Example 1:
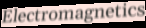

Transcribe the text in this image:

Electromagnetics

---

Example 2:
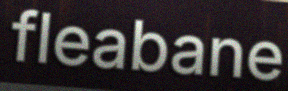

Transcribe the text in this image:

fleabane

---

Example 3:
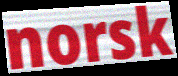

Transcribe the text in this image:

norsk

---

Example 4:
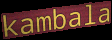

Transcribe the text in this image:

kambala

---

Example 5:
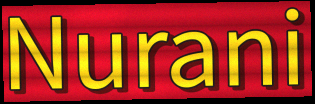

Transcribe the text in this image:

Nurani